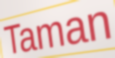
Taman